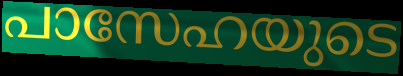
പാസേഹയുടെ